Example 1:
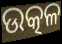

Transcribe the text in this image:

ଉତ୍କଳ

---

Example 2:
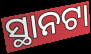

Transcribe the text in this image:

ସ୍ଥାନଟା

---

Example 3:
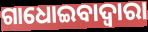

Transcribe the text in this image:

ଗାଧୋଇବାଦ୍ଵାରା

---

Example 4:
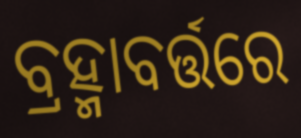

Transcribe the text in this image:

ବ୍ରହ୍ମାବର୍ତ୍ତରେ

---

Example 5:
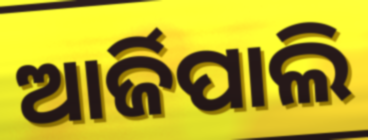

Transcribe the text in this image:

ଆର୍ଜିପାଲି